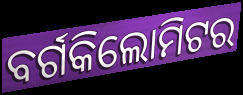
ବର୍ଗକିଲୋମିଟର